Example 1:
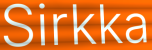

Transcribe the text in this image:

Sirkka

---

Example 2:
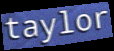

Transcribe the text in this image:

taylor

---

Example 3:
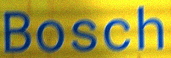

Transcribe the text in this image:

Bosch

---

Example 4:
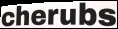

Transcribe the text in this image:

cherubs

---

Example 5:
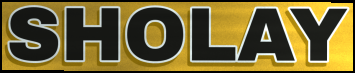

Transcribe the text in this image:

SHOLAY